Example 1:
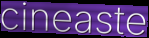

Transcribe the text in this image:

cineaste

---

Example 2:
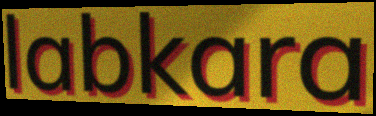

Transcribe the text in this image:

labkara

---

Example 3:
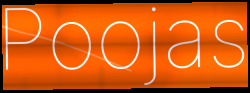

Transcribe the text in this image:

Poojas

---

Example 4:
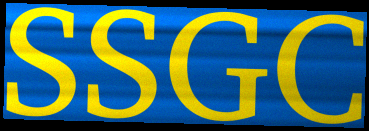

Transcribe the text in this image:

SSGC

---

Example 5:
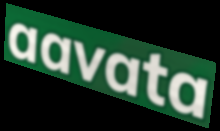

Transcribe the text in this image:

aavata